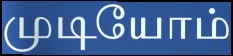
முடியோம்